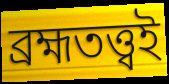
ব্রহ্মতত্ত্বই